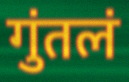
गुंतलं